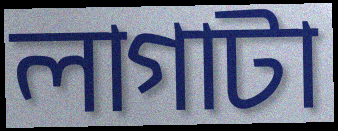
লাগাটা